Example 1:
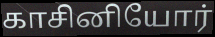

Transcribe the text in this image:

காசினியோர்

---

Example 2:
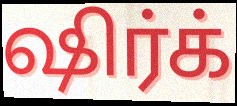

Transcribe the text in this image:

ஷிர்க்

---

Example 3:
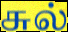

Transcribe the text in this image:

சுல்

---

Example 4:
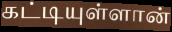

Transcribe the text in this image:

கட்டியுள்ளான்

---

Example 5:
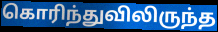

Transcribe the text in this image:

கொரிந்துவிலிருந்த